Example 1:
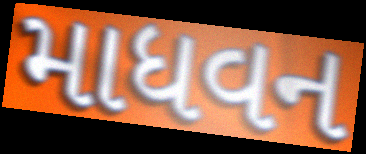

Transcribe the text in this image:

માધવન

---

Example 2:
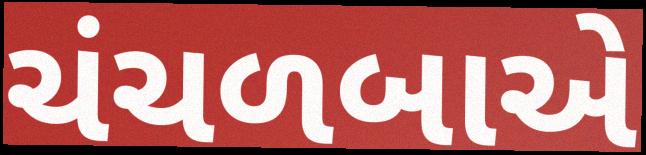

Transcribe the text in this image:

ચંચળબાએ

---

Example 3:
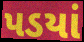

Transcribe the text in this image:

પડયાં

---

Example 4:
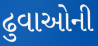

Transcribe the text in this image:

ઢુવાઓની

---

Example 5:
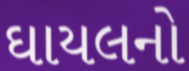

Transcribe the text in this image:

ઘાયલનો